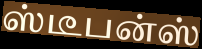
ஸ்டீபன்ஸ்